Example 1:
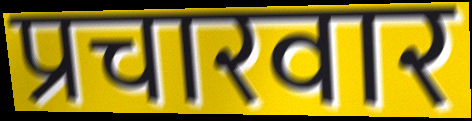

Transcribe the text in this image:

प्रचारवार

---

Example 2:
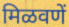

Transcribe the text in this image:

मिळवणें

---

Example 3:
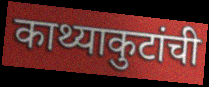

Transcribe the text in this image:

काथ्याकुटांची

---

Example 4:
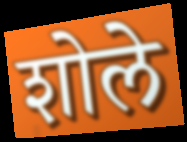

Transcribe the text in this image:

शोले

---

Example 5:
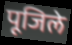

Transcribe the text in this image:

पूजिले